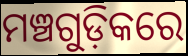
ମଞ୍ଚଗୁଡ଼ିକରେ